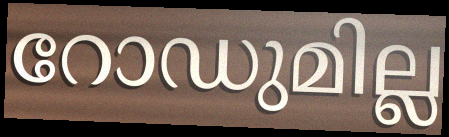
റോഡുമില്ല